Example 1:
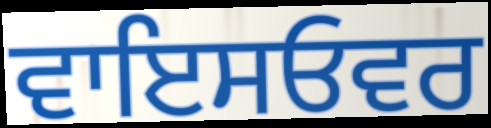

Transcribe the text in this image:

ਵਾਇਸਓਵਰ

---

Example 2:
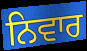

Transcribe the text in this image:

ਨਿਵਾਰ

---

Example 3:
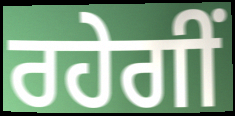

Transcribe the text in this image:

ਰਹੇਗੀਂ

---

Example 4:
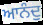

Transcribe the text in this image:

ਆਨੰਦੁ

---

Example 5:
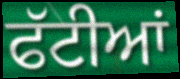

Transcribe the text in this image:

ਫੱਟੀਆਂ